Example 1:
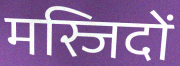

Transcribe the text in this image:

मस्जिदों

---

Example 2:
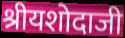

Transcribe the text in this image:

श्रीयशोदाजी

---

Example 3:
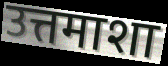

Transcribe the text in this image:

उत्तमाशा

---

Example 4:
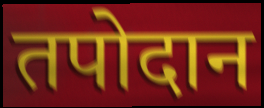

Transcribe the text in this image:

तपोदान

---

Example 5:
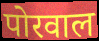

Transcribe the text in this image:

पोरवाल